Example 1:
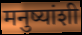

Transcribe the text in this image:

मनुष्यांशी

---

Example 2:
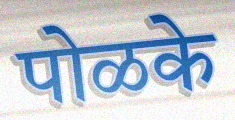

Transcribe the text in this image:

पोळके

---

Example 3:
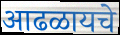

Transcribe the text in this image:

आढळायचे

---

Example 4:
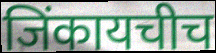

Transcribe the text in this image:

जिंकायचीच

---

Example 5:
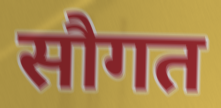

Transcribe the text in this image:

सौगत